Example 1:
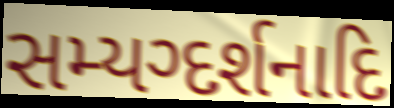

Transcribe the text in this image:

સમ્યગ્દર્શનાદિ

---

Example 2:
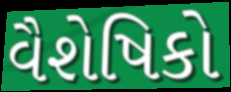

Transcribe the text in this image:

વૈશેષિકો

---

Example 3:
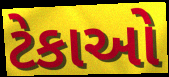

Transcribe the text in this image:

ટેકાઓ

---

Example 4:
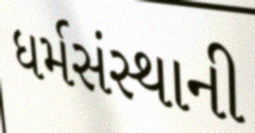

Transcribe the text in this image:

ધર્મસંસ્થાની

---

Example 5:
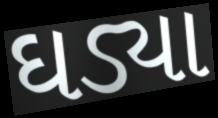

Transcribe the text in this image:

ઘડ્યા